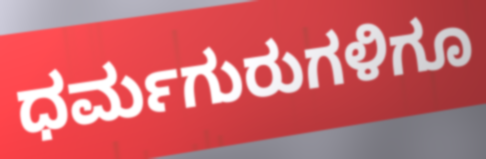
ಧರ್ಮಗುರುಗಳಿಗೂ